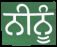
ਨੀਨੂੰ